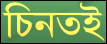
চিনতই